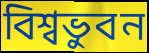
বিশ্বভুবন